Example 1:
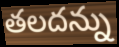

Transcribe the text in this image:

తలదన్ను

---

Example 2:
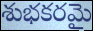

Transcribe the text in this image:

శుభకరమై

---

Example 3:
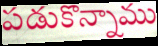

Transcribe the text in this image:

పడుకొన్నాము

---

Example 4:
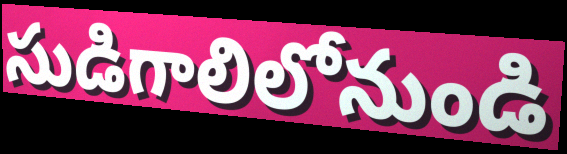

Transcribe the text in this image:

సుడిగాలిలోనుండి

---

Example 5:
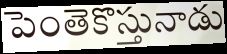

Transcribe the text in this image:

పెంతెకొస్తునాడు